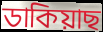
ডাকিয়াছ